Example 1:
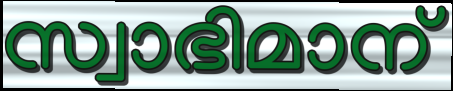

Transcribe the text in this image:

സ്വാഭിമാന്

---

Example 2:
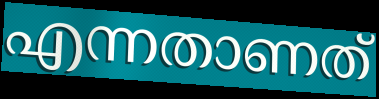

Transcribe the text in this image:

എന്നതാണത്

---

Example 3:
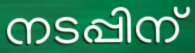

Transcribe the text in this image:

നടപ്പിന്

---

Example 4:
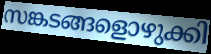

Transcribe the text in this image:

സങ്കടങ്ങളൊഴുക്കി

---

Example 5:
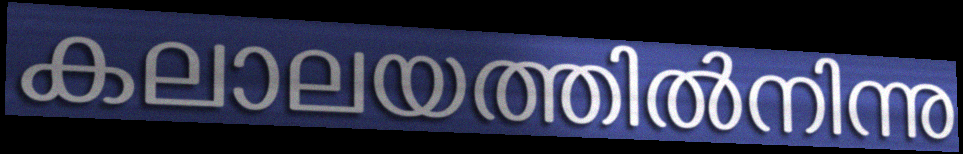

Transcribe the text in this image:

കലാലയത്തിൽനിന്നു